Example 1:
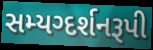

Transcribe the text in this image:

સમ્યગ્દર્શનરૂપી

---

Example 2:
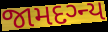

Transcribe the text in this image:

જામદગ્ન્ય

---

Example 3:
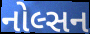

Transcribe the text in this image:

નોલ્સન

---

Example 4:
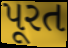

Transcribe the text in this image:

પૂરત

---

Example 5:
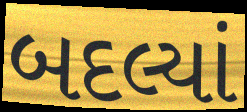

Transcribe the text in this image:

બદલ્યાં